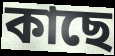
কাছে